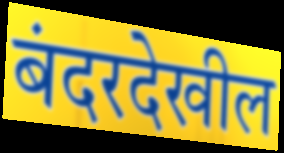
बंदरदेखील